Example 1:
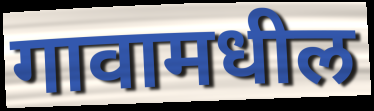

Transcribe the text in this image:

गावामधील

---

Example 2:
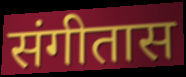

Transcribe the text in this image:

संगीतास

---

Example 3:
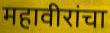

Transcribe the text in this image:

महावीरांचा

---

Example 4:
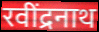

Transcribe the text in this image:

रवींद्रनाथ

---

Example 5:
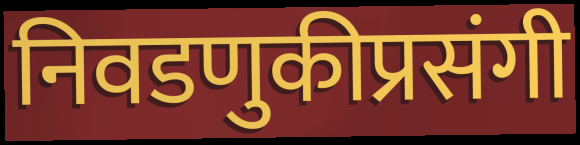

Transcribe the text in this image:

निवडणुकीप्रसंगी